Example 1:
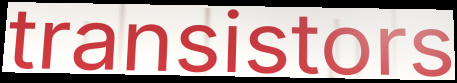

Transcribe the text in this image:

transistors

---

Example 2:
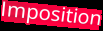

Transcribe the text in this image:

Imposition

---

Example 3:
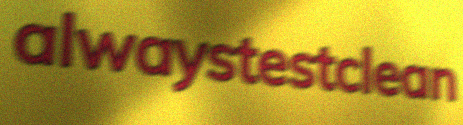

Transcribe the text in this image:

alwaystestclean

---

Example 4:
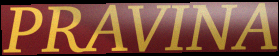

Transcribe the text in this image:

PRAVINA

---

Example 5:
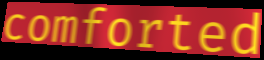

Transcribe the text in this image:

comforted